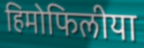
हिमोफिलीया